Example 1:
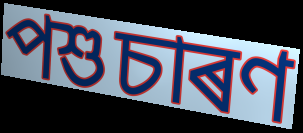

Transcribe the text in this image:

পশুচাৰণ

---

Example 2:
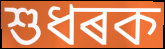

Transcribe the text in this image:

শুধৰক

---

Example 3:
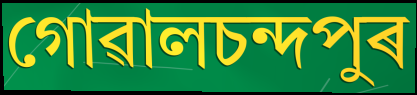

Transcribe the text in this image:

গোৱালচন্দপুৰ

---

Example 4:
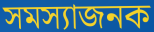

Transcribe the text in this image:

সমস্যাজনক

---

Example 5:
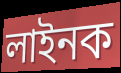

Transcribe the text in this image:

লাইনক